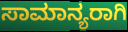
ಸಾಮಾನ್ಯರಾಗಿ